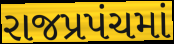
રાજપ્રપંચમાં